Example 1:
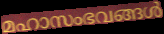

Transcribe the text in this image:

മഹാസംഭവങ്ങൾ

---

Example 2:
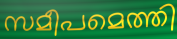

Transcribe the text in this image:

സമീപമെത്തി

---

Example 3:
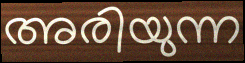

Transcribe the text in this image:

അരിയുന്ന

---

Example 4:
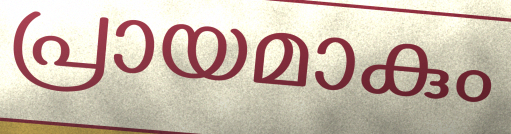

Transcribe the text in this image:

പ്രായമാകും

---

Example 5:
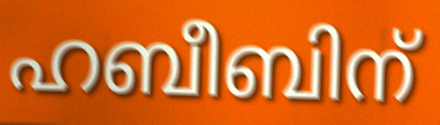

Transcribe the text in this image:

ഹബീബിന്